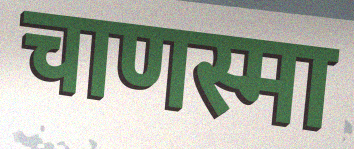
चाणस्मा